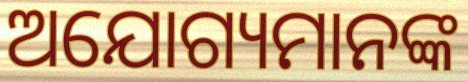
ଅଯୋଗ୍ୟମାନଙ୍କ